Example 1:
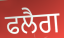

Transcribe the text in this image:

ਫਲੈਗ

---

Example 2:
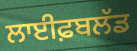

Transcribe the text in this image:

ਲਾਈਫ਼ਬਲੱਡ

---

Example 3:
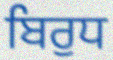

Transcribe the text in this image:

ਬਿਰੁਧ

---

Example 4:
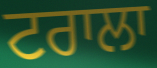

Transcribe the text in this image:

ਟਰਾਲਾ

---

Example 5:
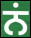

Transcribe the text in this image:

ਨਂ